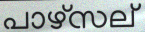
പാഴ്സല്